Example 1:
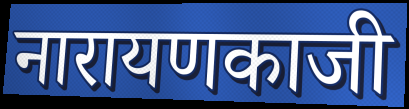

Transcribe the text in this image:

नारायणकाजी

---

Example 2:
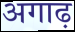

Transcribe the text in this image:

अगाढ़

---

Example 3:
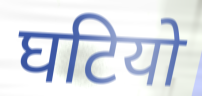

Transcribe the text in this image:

घटियो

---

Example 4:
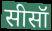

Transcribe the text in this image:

सीसॉ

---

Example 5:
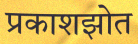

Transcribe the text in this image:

प्रकाशझोत